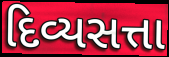
દિવ્યસત્તા